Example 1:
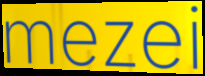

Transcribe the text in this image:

mezei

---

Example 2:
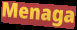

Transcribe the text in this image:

Menaga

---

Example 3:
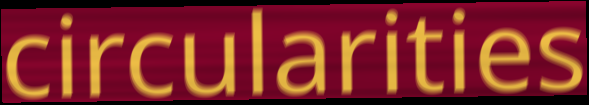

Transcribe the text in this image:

circularities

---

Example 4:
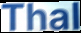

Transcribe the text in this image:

Thal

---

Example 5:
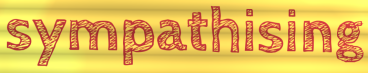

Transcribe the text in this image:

sympathising